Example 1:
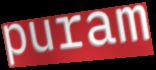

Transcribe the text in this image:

puram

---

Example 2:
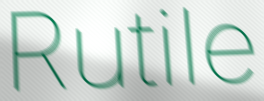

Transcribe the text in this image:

Rutile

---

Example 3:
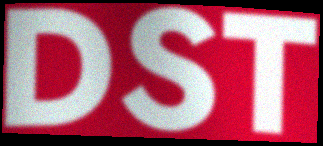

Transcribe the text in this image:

DST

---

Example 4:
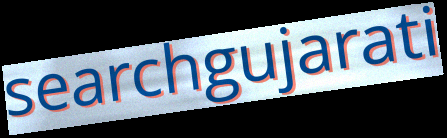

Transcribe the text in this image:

searchgujarati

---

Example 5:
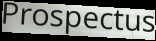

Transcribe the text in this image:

Prospectus